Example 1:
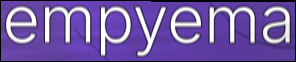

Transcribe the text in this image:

empyema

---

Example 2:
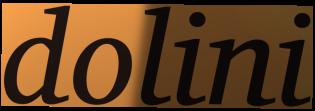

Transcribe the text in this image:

dolini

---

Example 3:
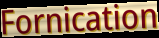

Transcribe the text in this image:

Fornication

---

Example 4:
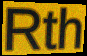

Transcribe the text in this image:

Rth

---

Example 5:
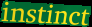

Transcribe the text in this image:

instinct